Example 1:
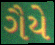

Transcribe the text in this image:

ગૈયે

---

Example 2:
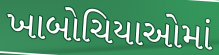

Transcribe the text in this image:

ખાબોચિયાઓમાં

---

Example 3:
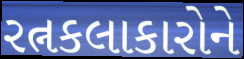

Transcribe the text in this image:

રત્નકલાકારોને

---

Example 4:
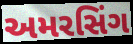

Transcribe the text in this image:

અમરસિંગ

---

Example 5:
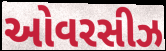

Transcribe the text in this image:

ઓવરસીઝ